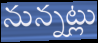
నున్నట్లు